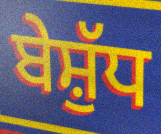
ਬੇਸ਼ੁੱਧ